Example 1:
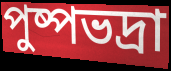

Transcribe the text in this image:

পুষ্পভদ্রা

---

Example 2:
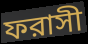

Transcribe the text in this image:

ফরাসী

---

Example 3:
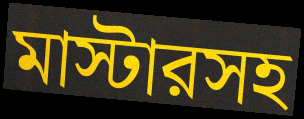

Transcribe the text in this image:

মাস্টারসহ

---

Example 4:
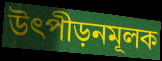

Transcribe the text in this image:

উৎপীড়নমূলক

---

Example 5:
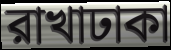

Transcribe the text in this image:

রাখাঢাকা